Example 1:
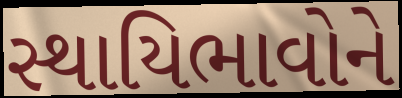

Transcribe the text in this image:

સ્થાયિભાવોને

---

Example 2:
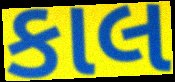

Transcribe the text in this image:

કાલ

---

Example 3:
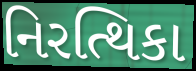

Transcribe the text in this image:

નિરત્થિકા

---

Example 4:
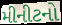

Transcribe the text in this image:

મીનીટનો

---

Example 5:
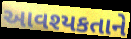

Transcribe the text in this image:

આવશ્યકતાને